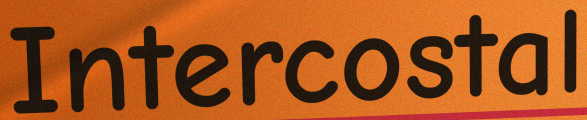
Intercostal